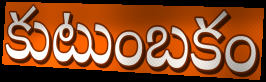
కుటుంబకం